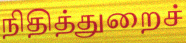
நிதித்துறைச்